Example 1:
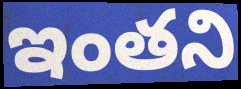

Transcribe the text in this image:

ఇంతని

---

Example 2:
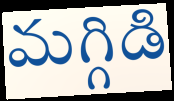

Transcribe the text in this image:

మగ్గిడి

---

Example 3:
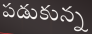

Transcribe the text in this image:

పడుకున్న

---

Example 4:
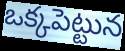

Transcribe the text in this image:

ఒక్కపెట్టున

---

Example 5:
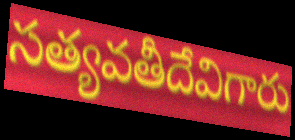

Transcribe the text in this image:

సత్యవతీదేవిగారు